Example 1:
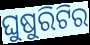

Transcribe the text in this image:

ଘୁଷୁରିଟିର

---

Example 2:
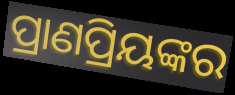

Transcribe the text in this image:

ପ୍ରାଣପ୍ରିୟଙ୍କର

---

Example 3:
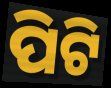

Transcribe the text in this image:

ପିଟି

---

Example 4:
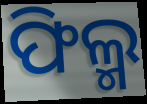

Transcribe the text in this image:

ଫିଲ୍ମ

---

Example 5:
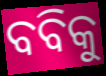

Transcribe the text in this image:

ବବିକୁ